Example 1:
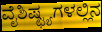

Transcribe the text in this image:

ವೈಶಿಷ್ಟ್ಯಗಳಲ್ಲಿನ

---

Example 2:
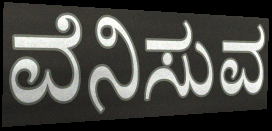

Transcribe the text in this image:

ವೆನಿಸುವ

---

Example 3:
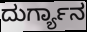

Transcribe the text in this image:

ದುರ್ಗ್ಯಾನ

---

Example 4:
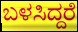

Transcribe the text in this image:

ಬಳಸಿದ್ದರೆ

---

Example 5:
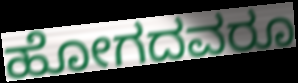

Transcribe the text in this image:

ಹೋಗದವರೂ